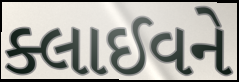
ક્લાઈવને